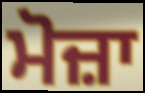
ਮੋਜ਼ਾ